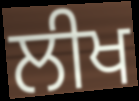
ਲੀਖ